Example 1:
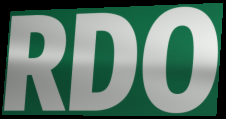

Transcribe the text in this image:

RDO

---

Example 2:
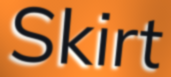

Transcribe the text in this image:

Skirt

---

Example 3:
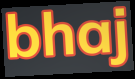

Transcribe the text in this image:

bhaj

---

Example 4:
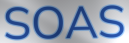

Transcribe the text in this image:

SOAS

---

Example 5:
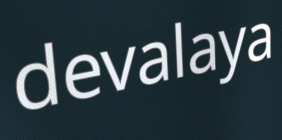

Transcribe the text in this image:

devalaya